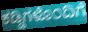
ಕಡ್ಡಿಗಳೊಂದಿಗೆ